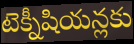
టెక్నీషియన్లకు